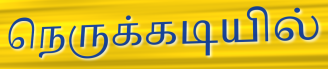
நெருக்கடியில்